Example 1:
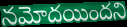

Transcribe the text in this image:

నమోదయిందని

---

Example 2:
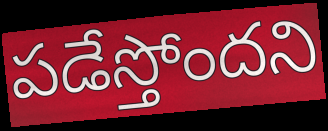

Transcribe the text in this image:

పడేస్తోందని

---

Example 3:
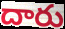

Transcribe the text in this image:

దారు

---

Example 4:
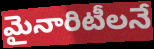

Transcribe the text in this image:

మైనారిటీలనే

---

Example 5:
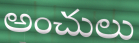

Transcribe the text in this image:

అంచులు